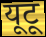
यूटू